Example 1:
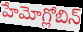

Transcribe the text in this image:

హేమోగ్లోబిన్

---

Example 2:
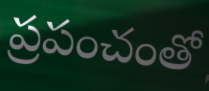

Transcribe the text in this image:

ప్రపంచంతో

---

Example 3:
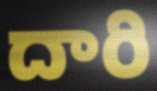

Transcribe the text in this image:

దారి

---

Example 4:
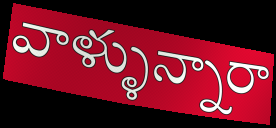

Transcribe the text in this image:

వాళ్ళున్నారా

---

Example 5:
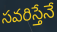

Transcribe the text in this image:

సవరిస్తేనే